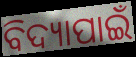
ବିଦ୍ୟାପାଇଁ